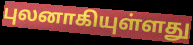
புலனாகியுள்ளது